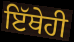
ਇੱਥੇਹੀ